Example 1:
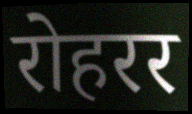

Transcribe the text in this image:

रोहरर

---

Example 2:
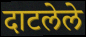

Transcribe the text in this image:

दाटलेले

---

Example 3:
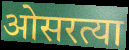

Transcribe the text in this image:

ओसरत्या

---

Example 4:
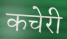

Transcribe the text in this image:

कचेरी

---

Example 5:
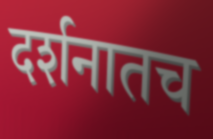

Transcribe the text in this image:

दर्शनातच